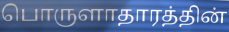
பொருளாதாரத்தின்